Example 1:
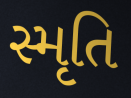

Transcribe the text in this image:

સ્મૃતિ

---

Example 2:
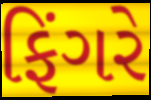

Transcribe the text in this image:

ફિંગરે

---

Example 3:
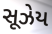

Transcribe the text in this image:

સૂઝેય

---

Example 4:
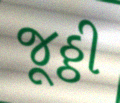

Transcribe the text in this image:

જૂઠ્ઠી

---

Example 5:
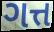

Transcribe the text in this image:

ગત્ત